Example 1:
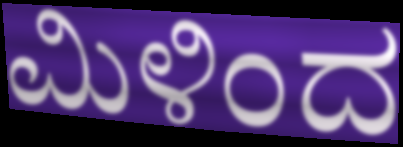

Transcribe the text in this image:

ಮಿಳಿಂದ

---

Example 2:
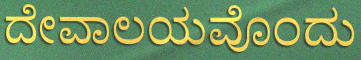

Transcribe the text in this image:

ದೇವಾಲಯವೊಂದು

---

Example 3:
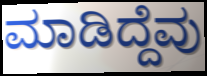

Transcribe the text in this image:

ಮಾಡಿದ್ದೆವು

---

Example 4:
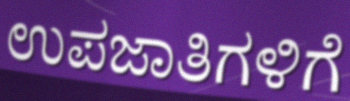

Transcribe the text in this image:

ಉಪಜಾತಿಗಳಿಗೆ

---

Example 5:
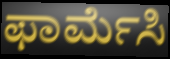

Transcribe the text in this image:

ಫಾರ್ಮೆಸಿ